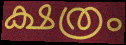
ക്ഷത്രം